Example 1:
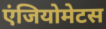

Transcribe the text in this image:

एंजियोमेटस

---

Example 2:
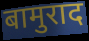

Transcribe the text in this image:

बामुराद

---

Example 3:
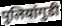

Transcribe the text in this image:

पुलियांगुडी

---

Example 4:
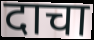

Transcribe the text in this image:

दाचा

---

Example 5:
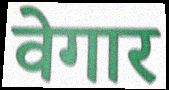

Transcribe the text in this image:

वेगार